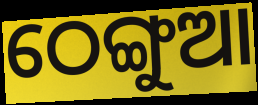
ଠେଙ୍ଗୁଆ